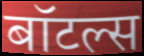
बॉटल्स